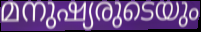
മനുഷ്യരുടെയും